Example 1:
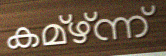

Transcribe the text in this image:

കമ്ഴ്ന്ന്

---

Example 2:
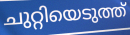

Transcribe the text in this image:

ചുറ്റിയെടുത്ത്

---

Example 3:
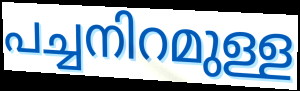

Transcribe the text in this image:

പച്ചനിറമുള്ള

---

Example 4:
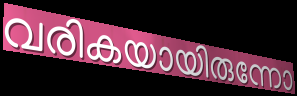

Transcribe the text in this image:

വരികയായിരുന്നോ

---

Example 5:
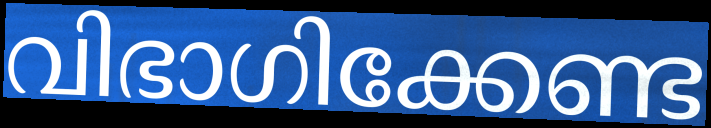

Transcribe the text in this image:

വിഭാഗിക്കേണ്ട